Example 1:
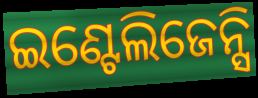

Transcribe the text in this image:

ଇଣ୍ଟେଲିଜେନ୍ସି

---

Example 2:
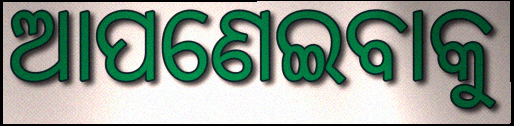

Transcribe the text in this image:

ଆପଣେଇବାକୁ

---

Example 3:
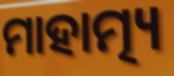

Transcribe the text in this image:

ମାହାତ୍ମ୍ୟ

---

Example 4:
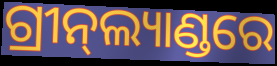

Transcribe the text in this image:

ଗ୍ରୀନ୍‍ଲ୍ୟାଣ୍ଡରେ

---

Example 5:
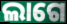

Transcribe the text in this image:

ଲାଗେ